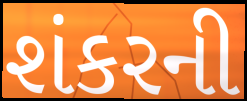
શંકરની